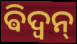
ଵିଦ୍ଵନ୍